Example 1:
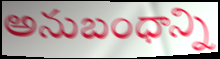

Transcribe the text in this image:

అనుబంధాన్ని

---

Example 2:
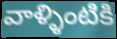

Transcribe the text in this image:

వాళ్ళింటికి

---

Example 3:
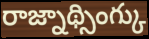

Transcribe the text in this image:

రాజ్నాథ్సింగ్కు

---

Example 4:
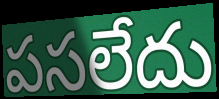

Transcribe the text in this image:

పసలేదు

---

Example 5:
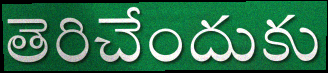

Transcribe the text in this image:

తెరిచేందుకు